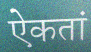
ऐकतां